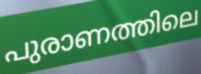
പുരാണത്തിലെ